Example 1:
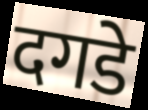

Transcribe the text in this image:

दगडे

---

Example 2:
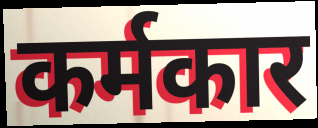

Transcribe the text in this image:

कर्मकार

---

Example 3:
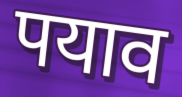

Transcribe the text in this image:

पयाव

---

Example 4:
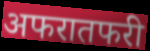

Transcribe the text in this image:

अफरातफरी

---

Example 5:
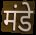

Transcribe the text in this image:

मंडे